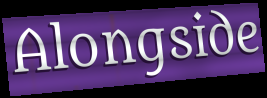
Alongside